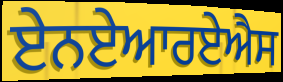
ਏਨਏਆਰਏਐਸ